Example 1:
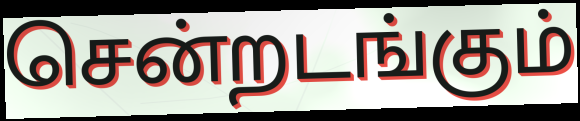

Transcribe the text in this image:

சென்றடங்கும்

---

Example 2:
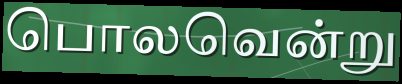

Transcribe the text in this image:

பொலவென்று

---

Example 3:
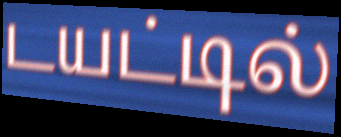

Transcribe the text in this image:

டயட்டில்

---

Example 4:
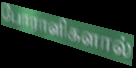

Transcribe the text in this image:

போராளிகளால்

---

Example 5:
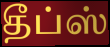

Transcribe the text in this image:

தீப்ஸ்